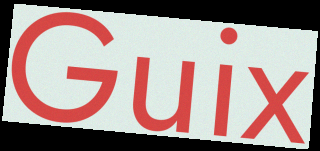
Guix